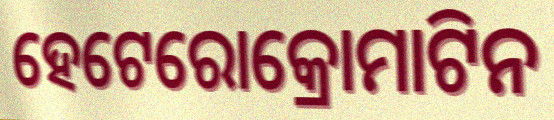
ହେଟେରୋକ୍ରୋମାଟିନ